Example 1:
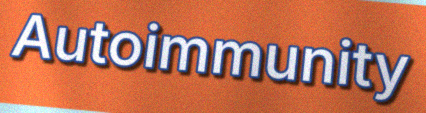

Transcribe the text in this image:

Autoimmunity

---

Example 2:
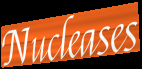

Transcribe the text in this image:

Nucleases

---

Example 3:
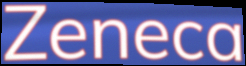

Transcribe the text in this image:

Zeneca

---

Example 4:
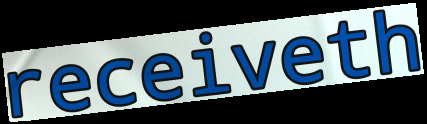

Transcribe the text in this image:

receiveth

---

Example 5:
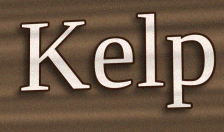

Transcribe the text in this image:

Kelp